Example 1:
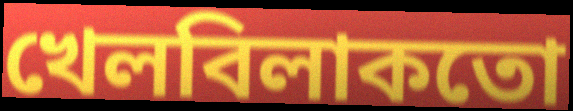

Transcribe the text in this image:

খেলবিলাকতো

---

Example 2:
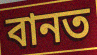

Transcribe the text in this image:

বানত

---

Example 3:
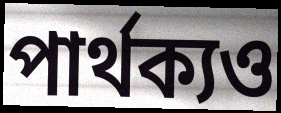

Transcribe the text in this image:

পাৰ্থক্যও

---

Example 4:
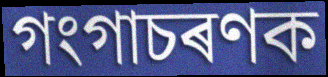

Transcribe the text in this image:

গংগাচৰণক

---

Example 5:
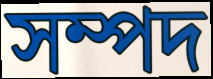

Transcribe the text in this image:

সম্পদ